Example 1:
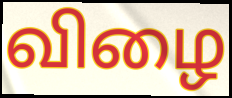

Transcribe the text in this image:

விழை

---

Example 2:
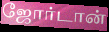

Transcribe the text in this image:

ஜோர்டான்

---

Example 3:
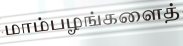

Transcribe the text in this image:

மாம்பழங்களைத்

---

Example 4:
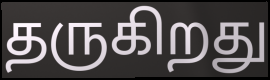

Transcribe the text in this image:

தருகிறது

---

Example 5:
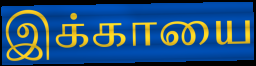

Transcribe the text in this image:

இக்காயை